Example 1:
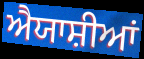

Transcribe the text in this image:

ਐਯਾਸ਼ੀਆਂ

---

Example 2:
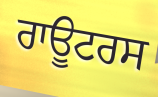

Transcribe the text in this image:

ਰਾਊਟਰਸ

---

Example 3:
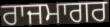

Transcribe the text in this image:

ਰਾਜਮਾਗਰ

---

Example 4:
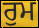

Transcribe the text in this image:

ਰੁਮ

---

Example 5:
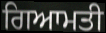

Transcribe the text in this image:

ਗਿਆਮਤੀ